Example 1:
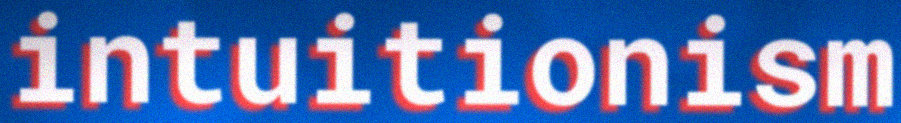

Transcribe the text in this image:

intuitionism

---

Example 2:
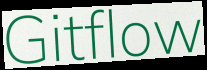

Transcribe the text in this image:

Gitflow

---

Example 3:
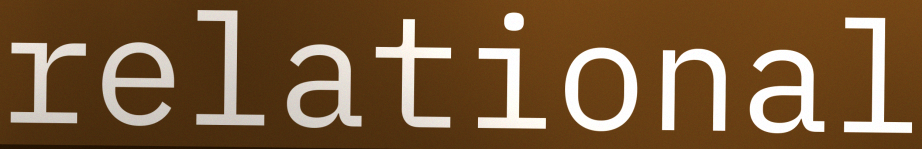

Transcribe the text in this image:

relational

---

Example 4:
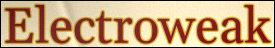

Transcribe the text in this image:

Electroweak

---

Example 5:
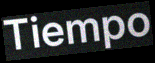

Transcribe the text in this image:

Tiempo